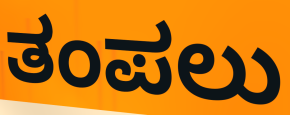
ತಂಪಲು